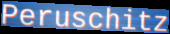
Peruschitz